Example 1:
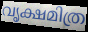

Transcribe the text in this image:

വൃക്ഷമിത്ര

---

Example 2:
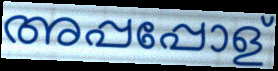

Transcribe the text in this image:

അപ്പപ്പോള്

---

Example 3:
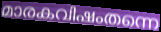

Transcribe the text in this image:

മാരകവിഷംതന്നെ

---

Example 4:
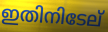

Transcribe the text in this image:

ഇതിനിടേല്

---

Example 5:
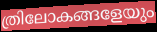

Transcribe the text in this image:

ത്രിലോകങ്ങളേയും